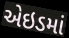
એઇડમાં